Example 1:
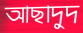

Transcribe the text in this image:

আছাদুদ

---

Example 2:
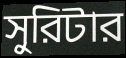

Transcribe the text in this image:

সুরিটার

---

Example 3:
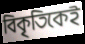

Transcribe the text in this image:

বিকৃতিকেই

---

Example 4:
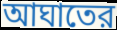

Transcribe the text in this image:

আঘাতের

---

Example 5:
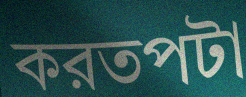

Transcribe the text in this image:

করতপটা